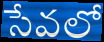
సేవలో